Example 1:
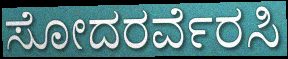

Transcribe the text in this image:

ಸೋದರರ್ವೆರಸಿ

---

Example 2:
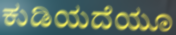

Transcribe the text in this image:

ಕುಡಿಯದೆಯೂ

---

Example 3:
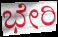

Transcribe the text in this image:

ಭೇರಿ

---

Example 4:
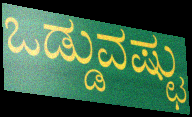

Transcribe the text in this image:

ಒಡ್ಡುವಷ್ಟು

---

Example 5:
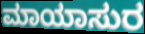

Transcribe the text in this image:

ಮಾಯಾಸುರ